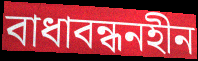
বাধাবন্ধনহীন